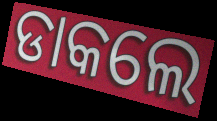
ଡାକଲେ